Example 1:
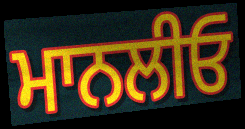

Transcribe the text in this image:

ਮਾਨਲੀਓ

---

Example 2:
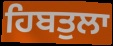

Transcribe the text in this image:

ਹਿਬਤੁਲਾ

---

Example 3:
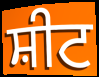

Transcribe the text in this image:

ਸ਼ੀਟ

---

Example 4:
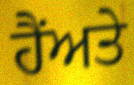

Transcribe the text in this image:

ਹੈਂਅਤੇ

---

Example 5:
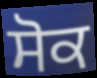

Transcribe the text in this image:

ਸੋਕ